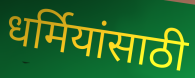
धर्मियांसाठी